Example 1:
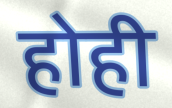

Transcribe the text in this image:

होही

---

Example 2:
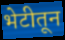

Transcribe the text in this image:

भेटीतून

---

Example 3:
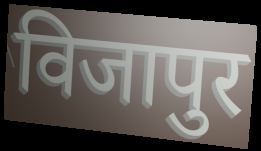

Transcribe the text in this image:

विजापुर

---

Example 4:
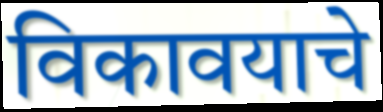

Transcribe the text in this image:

विकावयाचे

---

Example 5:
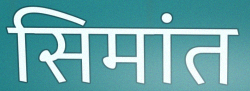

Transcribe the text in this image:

सिमांत